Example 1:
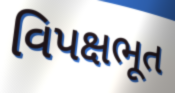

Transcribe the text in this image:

વિપક્ષભૂત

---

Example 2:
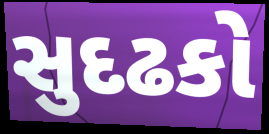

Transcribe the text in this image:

સુદઢકો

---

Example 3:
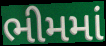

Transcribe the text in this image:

ભીમમાં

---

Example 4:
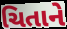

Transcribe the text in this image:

ચિતાને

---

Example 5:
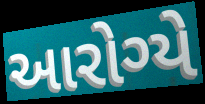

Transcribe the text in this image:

આરોગ્યે